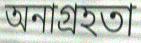
অনাগ্রহতা